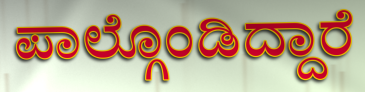
ಪಾಲ್ಗೊಂಡಿದ್ದಾರೆ